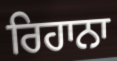
ਰਿਹਾਨਾ